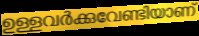
ഉള്ളവർക്കുവേണ്ടിയാണ്